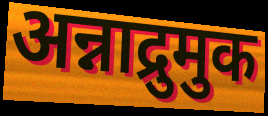
अन्नाद्रुमुक